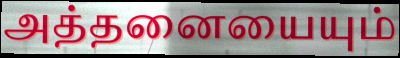
அத்தனையையும்